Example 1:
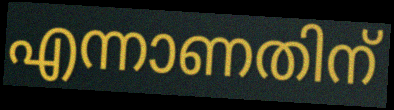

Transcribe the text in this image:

എന്നാണതിന്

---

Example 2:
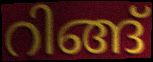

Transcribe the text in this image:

റിങ്ങ്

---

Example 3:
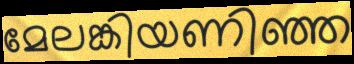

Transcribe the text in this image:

മേലങ്കിയണിഞ്ഞ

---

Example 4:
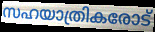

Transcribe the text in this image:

സഹയാത്രികരോട്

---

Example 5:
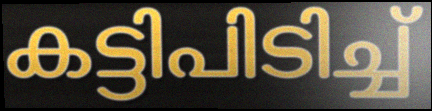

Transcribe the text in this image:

കട്ടിപിടിച്ച്